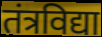
तंत्रविद्या